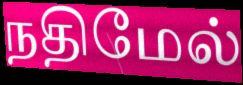
நதிமேல்